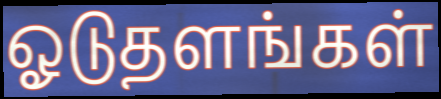
ஓடுதளங்கள்